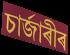
চাৰ্জাৰীৰ